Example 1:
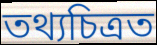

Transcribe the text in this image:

তথ্যচিত্ৰত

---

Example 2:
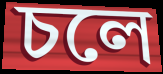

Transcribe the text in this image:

চলে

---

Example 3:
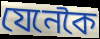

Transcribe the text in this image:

যেনেকৈ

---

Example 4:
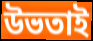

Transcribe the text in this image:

উভতাই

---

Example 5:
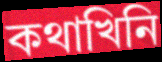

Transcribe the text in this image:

কথাখিনি